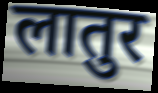
लातुर